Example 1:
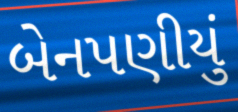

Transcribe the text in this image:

બેનપણીયું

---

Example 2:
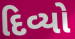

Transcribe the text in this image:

દિવ્યો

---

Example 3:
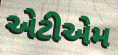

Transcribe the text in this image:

એટીએમ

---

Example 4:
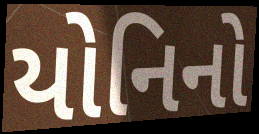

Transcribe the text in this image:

યોનિનો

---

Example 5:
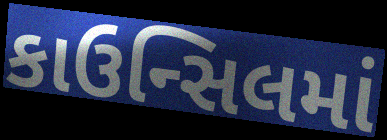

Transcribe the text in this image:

કાઉન્સિલમાં